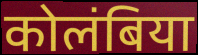
कोलंबिया